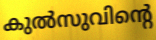
കുൽസുവിന്റെ